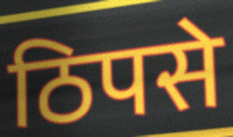
ठिपसे